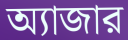
অ্যাজার